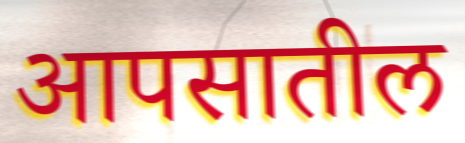
आपसातील